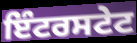
ਇੰਟਰਸਟੇਟ